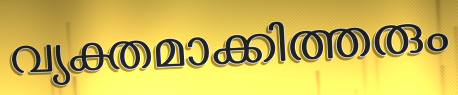
വ്യക്തമാക്കിത്തരും